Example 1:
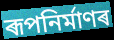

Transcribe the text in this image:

ৰূপনিৰ্মাণৰ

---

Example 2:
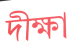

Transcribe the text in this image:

দীক্ষা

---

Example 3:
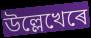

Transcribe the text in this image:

উল্লেখেৰে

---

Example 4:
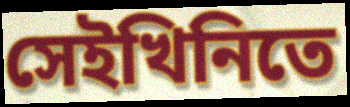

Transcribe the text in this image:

সেইখিনিতে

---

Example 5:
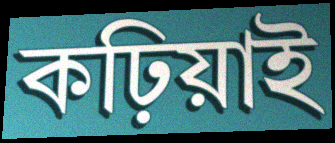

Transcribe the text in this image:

কঢ়িয়াই